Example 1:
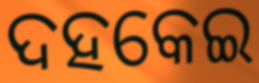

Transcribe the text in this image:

ଦହକେଇ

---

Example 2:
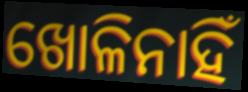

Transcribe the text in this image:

ଖୋଳିନାହିଁ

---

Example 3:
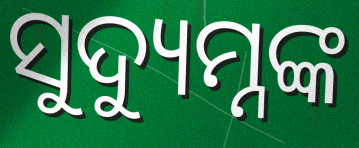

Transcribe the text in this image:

ସୁଦ୍ୟୁମ୍ନଙ୍କ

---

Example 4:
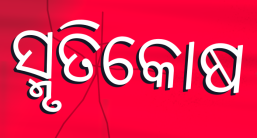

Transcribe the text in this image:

ସ୍ମୃତିକୋଷ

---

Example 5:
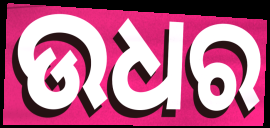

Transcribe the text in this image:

ଉଧର